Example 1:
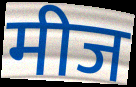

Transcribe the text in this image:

मीज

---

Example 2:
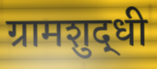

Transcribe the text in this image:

ग्रामशुद्धी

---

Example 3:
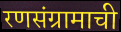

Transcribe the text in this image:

रणसंग्रामाची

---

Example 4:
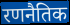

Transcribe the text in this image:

रणनैतिक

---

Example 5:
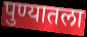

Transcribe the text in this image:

पुण्यातला